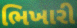
ભિખારી